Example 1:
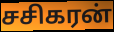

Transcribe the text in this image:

சசிகரன்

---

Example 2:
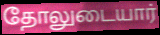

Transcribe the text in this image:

தோலுடையார்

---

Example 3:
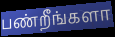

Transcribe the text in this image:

பண்றீங்களா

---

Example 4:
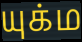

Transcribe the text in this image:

யுக்ம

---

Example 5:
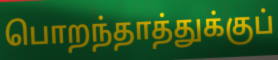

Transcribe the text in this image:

பொறந்தாத்துக்குப்